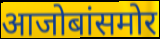
आजोबांसमोर